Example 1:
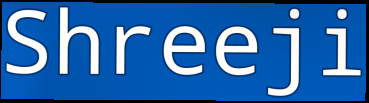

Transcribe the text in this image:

Shreeji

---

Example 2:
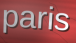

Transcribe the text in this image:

paris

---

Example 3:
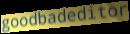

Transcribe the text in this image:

goodbadeditor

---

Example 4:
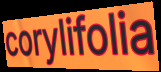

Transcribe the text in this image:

corylifolia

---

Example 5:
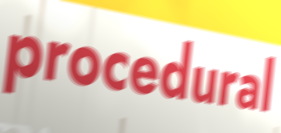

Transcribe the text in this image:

procedural